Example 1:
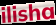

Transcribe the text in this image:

ilisha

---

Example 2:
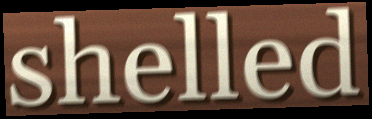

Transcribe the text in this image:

shelled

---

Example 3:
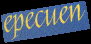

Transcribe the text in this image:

epecuen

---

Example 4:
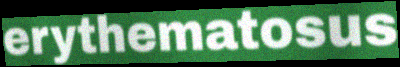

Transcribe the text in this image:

erythematosus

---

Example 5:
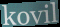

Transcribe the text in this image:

kovil